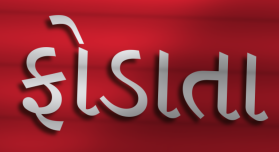
ફોડાતા